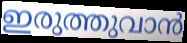
ഇരുത്തുവാൻ